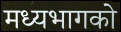
मध्यभागको